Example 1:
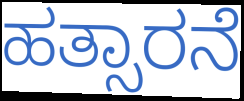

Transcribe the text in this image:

ಹತ್ಸಾರನೆ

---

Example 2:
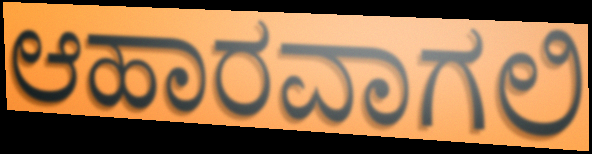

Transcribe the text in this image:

ಆಹಾರವಾಗಲಿ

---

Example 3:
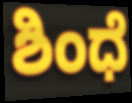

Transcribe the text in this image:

ಶಿಂಧೆ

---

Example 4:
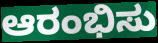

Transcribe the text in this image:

ಆರಂಭಿಸು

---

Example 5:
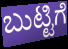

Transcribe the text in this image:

ಬುಟ್ಟಿಗೆ